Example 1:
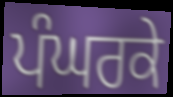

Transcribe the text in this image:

ਪੰਘਰਕੇ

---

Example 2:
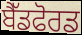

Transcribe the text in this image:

ਬੈੱਡਫੋਰਡ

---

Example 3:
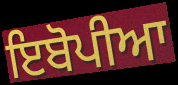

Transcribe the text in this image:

ਇਬੋਪੀਆ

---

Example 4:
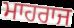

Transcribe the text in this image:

ਮਾਹਰਾਜ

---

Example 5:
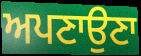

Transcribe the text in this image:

ਅਪਣਾਉਣਾ